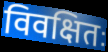
विवक्षितः